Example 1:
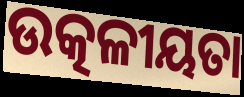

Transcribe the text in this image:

ଉତ୍କଳୀୟତା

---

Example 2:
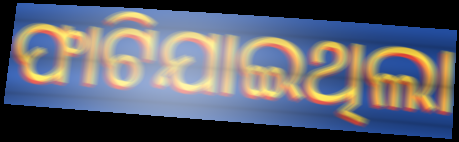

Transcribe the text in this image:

ଫାଟିଯାଇଥିଲା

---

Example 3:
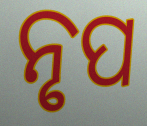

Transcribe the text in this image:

ନୃପ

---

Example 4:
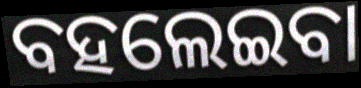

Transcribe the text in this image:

ବହଲେଇବା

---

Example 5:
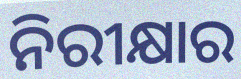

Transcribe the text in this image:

ନିରୀକ୍ଷାର